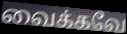
வைக்கவே